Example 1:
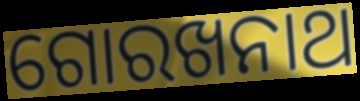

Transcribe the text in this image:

ଗୋରଖନାଥ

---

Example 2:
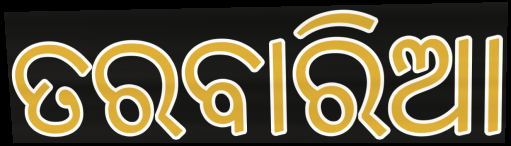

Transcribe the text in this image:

ତରବାରିଆ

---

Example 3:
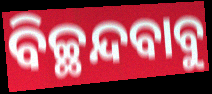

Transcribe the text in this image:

ବିଚ୍ଛନ୍ଦବାବୁ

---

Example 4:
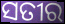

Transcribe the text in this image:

ସତୀର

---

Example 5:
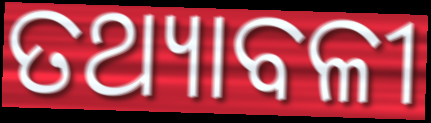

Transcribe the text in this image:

ତଥ୍ୟାବଳୀ